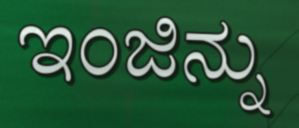
ಇಂಜಿನ್ನು